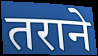
तराने